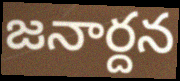
జనార్దన